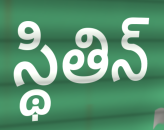
స్థితిన్